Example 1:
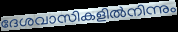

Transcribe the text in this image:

ദേശവാസികളിൽനിന്നും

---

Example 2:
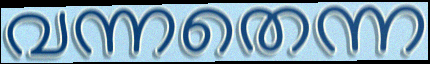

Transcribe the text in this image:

വന്നതെന്ന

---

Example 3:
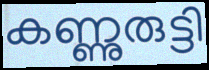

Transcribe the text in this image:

കണ്ണുരുട്ടി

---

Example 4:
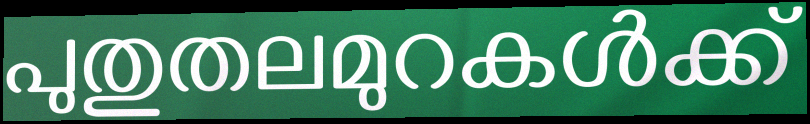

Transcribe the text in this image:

പുതുതലമുറകൾക്ക്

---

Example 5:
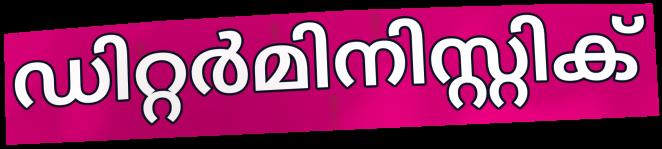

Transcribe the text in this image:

ഡിറ്റർമിനിസ്റ്റിക്